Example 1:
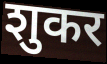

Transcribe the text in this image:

शुकर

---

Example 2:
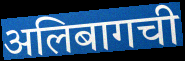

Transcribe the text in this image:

अलिबागची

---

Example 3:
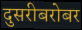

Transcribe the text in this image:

दुसरीबरोबर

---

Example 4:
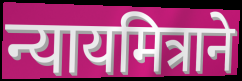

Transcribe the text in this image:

न्यायमित्राने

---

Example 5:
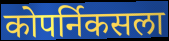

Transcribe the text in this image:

कोपर्निकसला